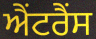
ਐਂਟਰੈਂਸ